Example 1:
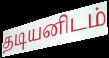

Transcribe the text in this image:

தடியனிடம்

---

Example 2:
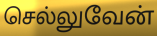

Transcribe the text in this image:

செல்லுவேன்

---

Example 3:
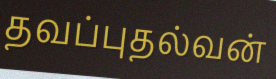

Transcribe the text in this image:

தவப்புதல்வன்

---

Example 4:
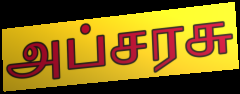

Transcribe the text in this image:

அப்சரசு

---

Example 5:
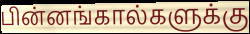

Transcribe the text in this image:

பின்னங்கால்களுக்கு